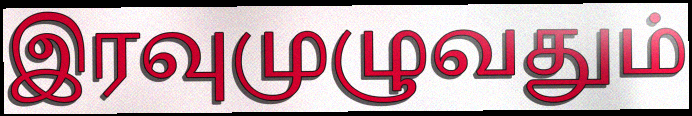
இரவுமுழுவதும்